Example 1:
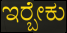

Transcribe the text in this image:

ಇರ‍್ಬೇಕು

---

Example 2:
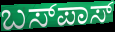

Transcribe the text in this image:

ಬಸ್‍ಪಾಸ್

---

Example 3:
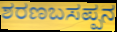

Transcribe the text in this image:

ಶರಣಬಸಪ್ಪನ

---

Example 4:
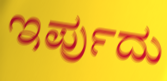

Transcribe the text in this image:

ಇರ್ಪುದು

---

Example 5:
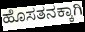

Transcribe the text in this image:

ಹೊಸತನಕ್ಕಾಗಿ